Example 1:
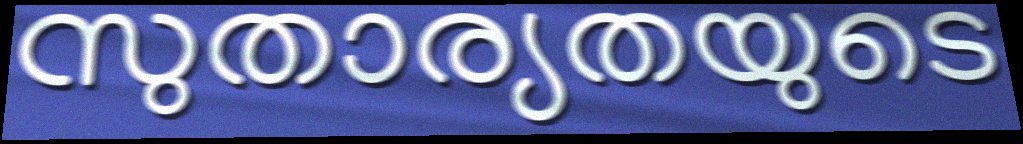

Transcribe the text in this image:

സുതാര്യതയുടെ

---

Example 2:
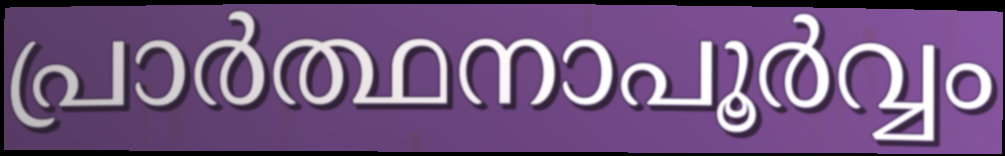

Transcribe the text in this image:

പ്രാർത്ഥനാപൂർവ്വം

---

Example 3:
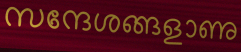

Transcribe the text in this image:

സന്ദേശങ്ങളാണു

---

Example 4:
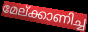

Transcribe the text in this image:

മേല്ക്കാണിച്ച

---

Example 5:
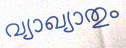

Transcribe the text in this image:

വ്യാഖ്യാതും